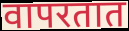
वापरतात